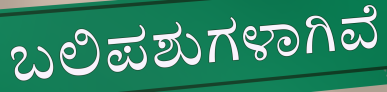
ಬಲಿಪಶುಗಳಾಗಿವೆ